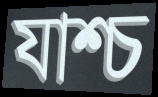
যাশ্চ